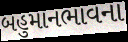
બહુમાનભાવના